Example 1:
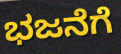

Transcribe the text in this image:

ಭಜನೆಗೆ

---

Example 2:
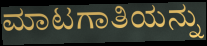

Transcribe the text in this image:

ಮಾಟಗಾತಿಯನ್ನು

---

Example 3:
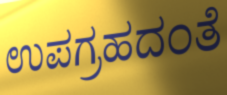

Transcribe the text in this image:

ಉಪಗ್ರಹದಂತೆ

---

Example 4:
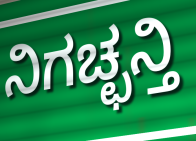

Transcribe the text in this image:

ನಿಗಚ್ಛನ್ತಿ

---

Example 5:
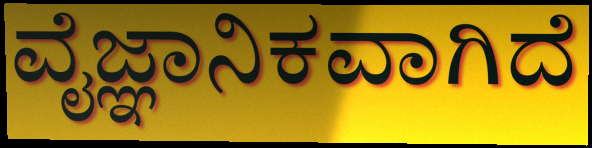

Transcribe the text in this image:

ವೈಜ್ಞಾನಿಕವಾಗಿದೆ